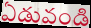
ఏడువండి